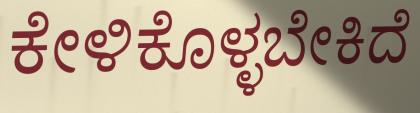
ಕೇಳಿಕೊಳ್ಳಬೇಕಿದೆ